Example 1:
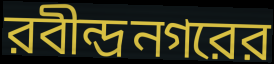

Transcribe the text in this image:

রবীন্দ্রনগরের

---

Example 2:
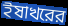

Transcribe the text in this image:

ইষাখরের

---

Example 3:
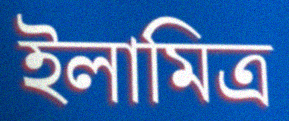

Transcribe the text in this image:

ইলামিত্র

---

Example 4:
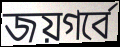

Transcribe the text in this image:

জয়গর্বে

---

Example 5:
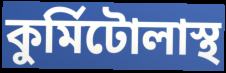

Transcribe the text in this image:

কুর্মিটোলাস্থ